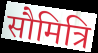
सौमित्रि